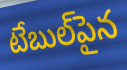
టేబుల్‌పైన